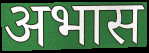
अभास